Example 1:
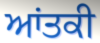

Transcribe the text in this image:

ਆਂਤਕੀ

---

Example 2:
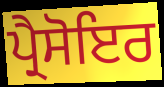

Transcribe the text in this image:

ਪ੍ਰੈਸੋਇਰ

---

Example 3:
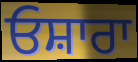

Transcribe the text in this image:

ਓਸ਼ਾਰਾ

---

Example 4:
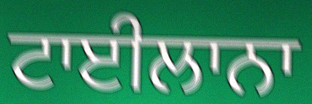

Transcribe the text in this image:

ਟਾਈਲਾਨਾ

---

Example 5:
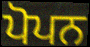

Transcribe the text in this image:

ਪੋਪਨ